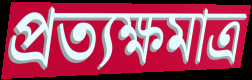
প্রত্যক্ষমাত্র